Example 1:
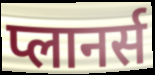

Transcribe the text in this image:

प्लानर्स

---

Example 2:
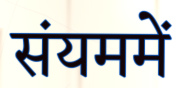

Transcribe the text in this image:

संयममें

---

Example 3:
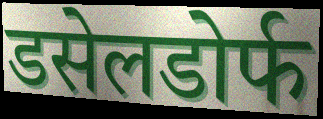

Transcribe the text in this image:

डसेलडोर्फ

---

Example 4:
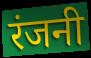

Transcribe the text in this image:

रंजनी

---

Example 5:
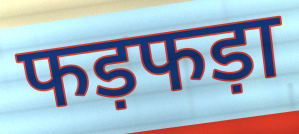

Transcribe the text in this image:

फड़फड़ा